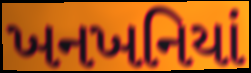
ખનખનિયાં